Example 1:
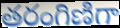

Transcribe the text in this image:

తరంగిణిగా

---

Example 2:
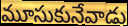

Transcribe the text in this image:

మూసుకునేవాడు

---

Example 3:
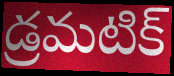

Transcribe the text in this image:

డ్రమటిక్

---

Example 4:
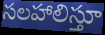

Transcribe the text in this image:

సలహాలిస్తూ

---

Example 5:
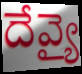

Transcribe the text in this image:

దేవ్యై